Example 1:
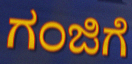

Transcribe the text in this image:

ಗಂಜಿಗೆ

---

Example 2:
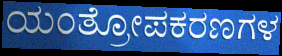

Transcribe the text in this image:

ಯಂತ್ರೋಪಕರಣಗಳ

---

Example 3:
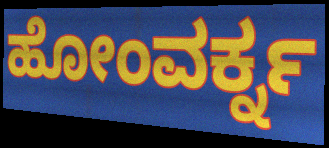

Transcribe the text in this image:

ಹೋಂವರ್ಕ್ನ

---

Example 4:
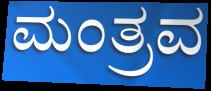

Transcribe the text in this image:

ಮಂತ್ರವ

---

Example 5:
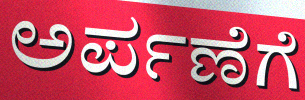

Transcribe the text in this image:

ಅರ್ಪಣೆಗೆ